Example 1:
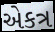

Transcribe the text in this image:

એકત્ર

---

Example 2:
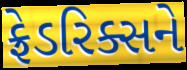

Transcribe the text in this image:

ફ્રેડરિક્સને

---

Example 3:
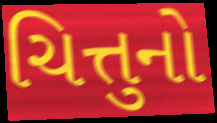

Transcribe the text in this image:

ચિત્તુનો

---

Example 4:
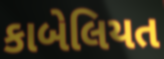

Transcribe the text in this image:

કાબેલિયત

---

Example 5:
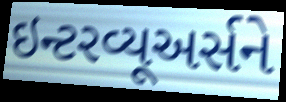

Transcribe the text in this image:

ઇન્ટરવ્યૂઅર્સને